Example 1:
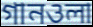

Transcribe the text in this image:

গানওলা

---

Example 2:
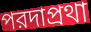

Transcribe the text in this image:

পরদাপ্রথা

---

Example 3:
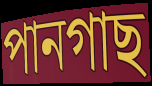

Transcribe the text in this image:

পানগাছ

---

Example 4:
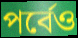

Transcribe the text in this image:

পর্বেও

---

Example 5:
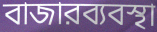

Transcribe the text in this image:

বাজারব্যবস্থা